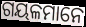
ଗୟଳମାନେ